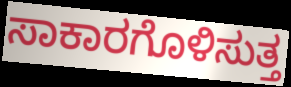
ಸಾಕಾರಗೊಳಿಸುತ್ತ